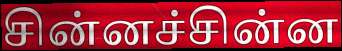
சின்னச்சின்ன